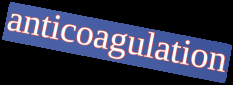
anticoagulation